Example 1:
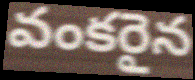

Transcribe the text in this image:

వంకరైన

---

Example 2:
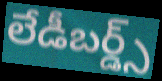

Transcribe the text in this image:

లేడీబర్డ్స్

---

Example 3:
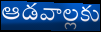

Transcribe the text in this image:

ఆడవాల్లకు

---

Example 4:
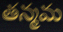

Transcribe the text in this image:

తన్మమ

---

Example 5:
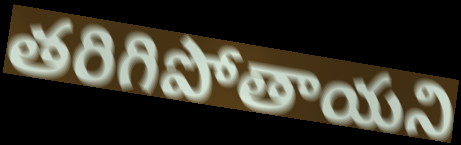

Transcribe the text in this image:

తరిగిపోతాయని